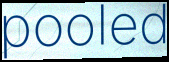
pooled